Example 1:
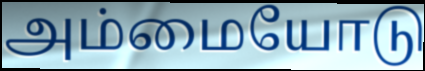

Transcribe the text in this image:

அம்மையோடு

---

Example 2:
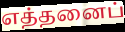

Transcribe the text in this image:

எத்தனைப்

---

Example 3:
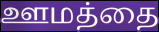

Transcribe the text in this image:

ஊமத்தை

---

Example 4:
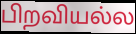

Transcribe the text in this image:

பிறவியல்ல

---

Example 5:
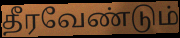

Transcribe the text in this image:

தீரவேண்டும்